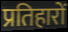
प्रतिहारों